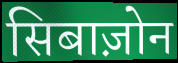
सिबाज़ोन